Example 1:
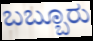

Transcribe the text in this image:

ಬಬ್ಬೂರು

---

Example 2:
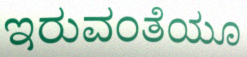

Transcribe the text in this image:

ಇರುವಂತೆಯೂ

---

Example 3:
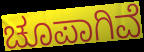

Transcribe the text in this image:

ಚೂಪಾಗಿವೆ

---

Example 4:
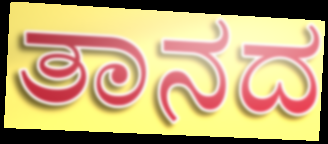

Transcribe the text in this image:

ತಾನದ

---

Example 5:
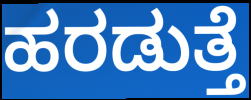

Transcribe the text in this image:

ಹರಡುತ್ತೆ